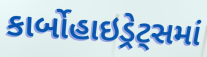
કાર્બોહાઇડ્રેટ્સમાં